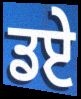
ਡਏ